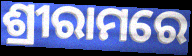
ଶ୍ରୀରାମରେ